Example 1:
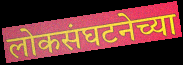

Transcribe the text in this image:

लोकसंघटनेच्या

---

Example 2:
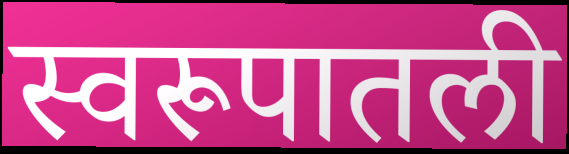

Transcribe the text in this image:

स्वरूपातली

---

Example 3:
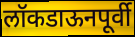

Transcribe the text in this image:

लॉकडाऊनपूर्वी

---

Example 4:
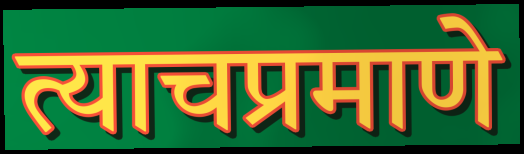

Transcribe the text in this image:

त्याचप्रमाणे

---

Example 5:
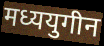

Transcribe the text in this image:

मध्ययुगीन